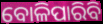
ବୋଳିପାରିବି